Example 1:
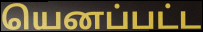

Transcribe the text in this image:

யெனப்பட்ட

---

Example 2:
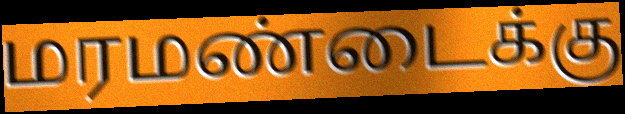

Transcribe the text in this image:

மரமண்டைக்கு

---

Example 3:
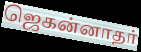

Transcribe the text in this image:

ஜெகன்னாதர்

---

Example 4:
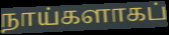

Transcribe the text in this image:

நாய்களாகப்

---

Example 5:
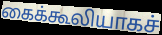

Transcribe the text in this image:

கைக்கூலியாகச்